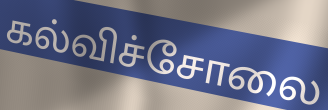
கல்விச்சோலை